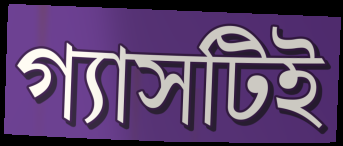
গ্যাসটিই